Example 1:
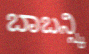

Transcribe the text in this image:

ಬಾಬನ್ಸ್ಕಿ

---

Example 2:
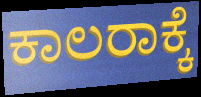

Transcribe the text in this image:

ಕಾಲರಾಕ್ಕೆ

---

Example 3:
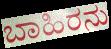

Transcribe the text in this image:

ಬಾಹಿರನು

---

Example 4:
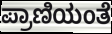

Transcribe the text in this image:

ಪ್ರಾಣಿಯಂತೆ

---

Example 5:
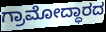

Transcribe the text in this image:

ಗ್ರಾಮೋದ್ಧಾರದ